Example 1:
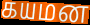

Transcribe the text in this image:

கயமன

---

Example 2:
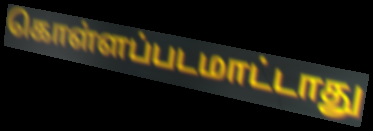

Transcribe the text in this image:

கொள்ளப்படமாட்டாது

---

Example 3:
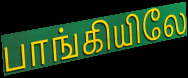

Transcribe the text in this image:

பாங்கியிலே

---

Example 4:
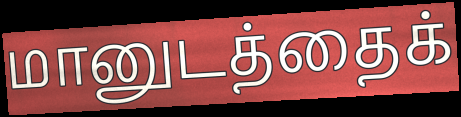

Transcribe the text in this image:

மானுடத்தைக்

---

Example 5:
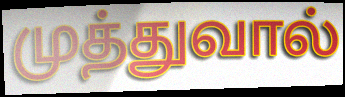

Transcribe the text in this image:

முத்துவால்